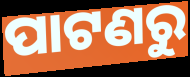
ପାଟଣରୁ